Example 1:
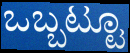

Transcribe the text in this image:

ಒಬ್ಬಟ್ಟೂ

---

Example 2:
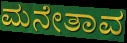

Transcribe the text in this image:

ಮನೇತಾವ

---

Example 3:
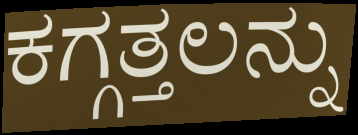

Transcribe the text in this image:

ಕಗ್ಗತ್ತಲನ್ನು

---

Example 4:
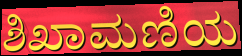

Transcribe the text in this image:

ಶಿಖಾಮಣಿಯ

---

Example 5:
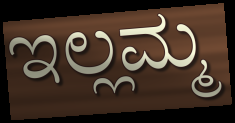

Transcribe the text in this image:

ಇಲ್ಲಮ್ಮ